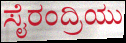
ಸೈರಂದ್ರಿಯು